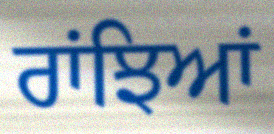
ਰਾਂਝਿਆਂ